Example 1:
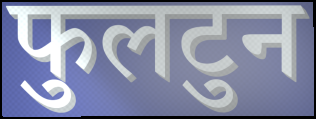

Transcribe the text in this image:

फुलटुन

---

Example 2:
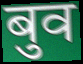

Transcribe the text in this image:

बुव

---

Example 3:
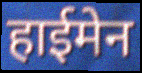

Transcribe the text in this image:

हाईमेन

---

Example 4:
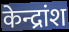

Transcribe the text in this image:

केन्द्रांश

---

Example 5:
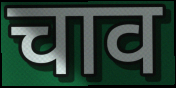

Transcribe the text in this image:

चाव